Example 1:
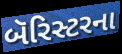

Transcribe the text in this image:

બૅરિસ્ટરના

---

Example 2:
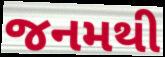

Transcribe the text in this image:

જનમથી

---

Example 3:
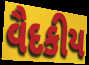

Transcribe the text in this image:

વૈદકીય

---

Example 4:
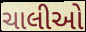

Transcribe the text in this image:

ચાલીઓ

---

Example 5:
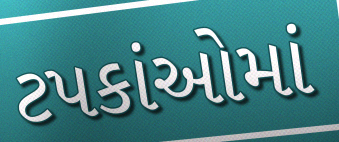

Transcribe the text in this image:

ટપકાંઓમાં